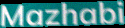
Mazhabi